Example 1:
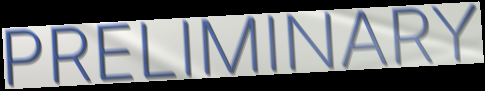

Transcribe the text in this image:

PRELIMINARY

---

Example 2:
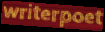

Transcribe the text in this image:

writerpoet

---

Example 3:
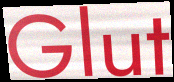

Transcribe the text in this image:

Glut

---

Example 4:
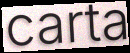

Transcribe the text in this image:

carta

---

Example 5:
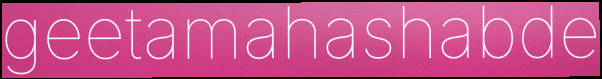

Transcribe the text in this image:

geetamahashabde